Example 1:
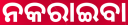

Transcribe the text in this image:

ନକରାଇବା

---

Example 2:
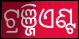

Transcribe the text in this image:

ଟ୍ରଞ୍ଜିଏଣ୍ଟ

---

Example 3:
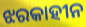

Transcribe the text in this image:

ଝରକାହୀନ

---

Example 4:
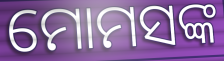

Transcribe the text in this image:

ମୋମସଙ୍କ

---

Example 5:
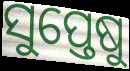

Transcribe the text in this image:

ସୁପ୍ତେଷୁ